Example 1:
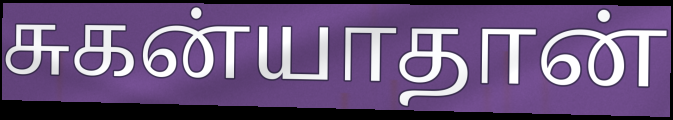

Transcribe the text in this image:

சுகன்யாதான்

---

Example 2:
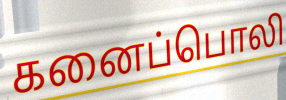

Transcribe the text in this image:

கனைப்பொலி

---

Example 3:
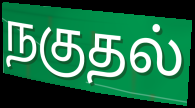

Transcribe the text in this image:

நகுதல்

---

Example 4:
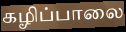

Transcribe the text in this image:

கழிப்பாலை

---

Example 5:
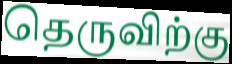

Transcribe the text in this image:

தெருவிற்கு